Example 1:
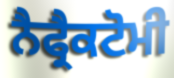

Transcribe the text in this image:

ਨੈਫ੍ਰੈਕਟੋਮੀ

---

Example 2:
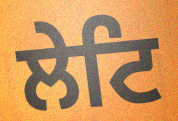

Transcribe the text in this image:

ਲੇਟਿ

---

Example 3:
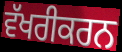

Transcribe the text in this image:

ਵੱਖਰੀਕਰਨ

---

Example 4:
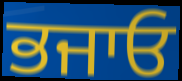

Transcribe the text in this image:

ਭਜਾਓ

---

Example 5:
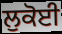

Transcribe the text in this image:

ਲੁਕੋਈ